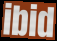
ibid